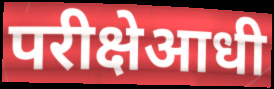
परीक्षेआधी